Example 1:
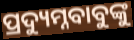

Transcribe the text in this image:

ପ୍ରଦ୍ୟୁମ୍ନବାବୁଙ୍କୁ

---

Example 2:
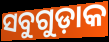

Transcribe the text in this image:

ସବୁଗୁଡ଼ାକ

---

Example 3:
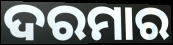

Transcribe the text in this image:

ଦରମାର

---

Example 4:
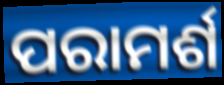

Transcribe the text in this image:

ପରାମର୍ଶ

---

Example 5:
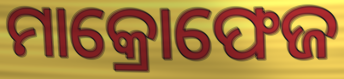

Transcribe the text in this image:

ମାକ୍ରୋଫେଜ